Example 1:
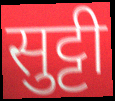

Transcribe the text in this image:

सुट्टी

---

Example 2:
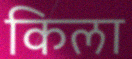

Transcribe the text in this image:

किला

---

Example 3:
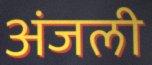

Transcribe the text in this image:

अंजली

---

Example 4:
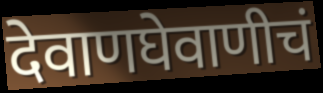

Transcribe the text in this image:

देवाणघेवाणीचं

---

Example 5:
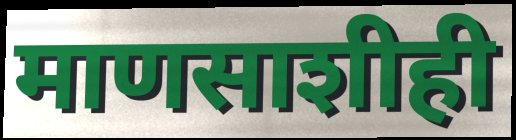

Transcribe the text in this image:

माणसाशीही